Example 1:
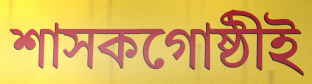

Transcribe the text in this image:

শাসকগোষ্ঠীই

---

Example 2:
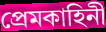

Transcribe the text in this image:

প্রেমকাহিনী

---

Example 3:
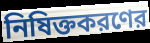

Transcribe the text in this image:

নিষিক্তকরণের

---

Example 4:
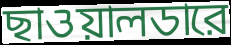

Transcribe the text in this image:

ছাওয়ালডারে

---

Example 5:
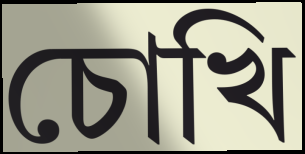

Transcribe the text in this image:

চোখি